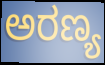
ಅರಣ್ಯ